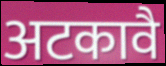
अटकावै